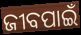
ଜୀବପାଇଁ